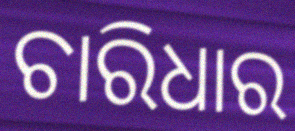
ଚାରିଧାର